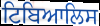
ਟਿਬਿਆਲਿਸ